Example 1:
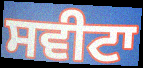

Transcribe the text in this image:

ਸਵੀਟਾ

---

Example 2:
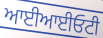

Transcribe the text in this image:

ਆਈਆਈਓਟੀ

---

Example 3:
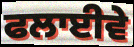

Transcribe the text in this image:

ਫਲਾਈਵੇ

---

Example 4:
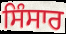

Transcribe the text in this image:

ਸਿੰਸਾਰ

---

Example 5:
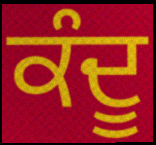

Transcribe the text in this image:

ਕੰਦੂ